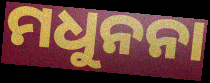
ମଧୁନନା